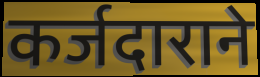
कर्जदाराने